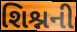
શિશ્નની